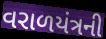
વરાળયંત્રની